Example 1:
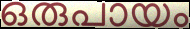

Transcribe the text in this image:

ഒരുപായം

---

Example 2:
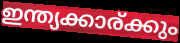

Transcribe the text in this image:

ഇന്ത്യക്കാര്ക്കും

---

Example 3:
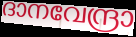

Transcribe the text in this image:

ദാനവേന്ദ്രാ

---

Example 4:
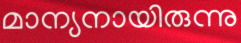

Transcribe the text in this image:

മാന്യനായിരുന്നു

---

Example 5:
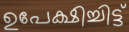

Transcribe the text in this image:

ഉപേക്ഷിച്ചിട്ട്